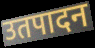
उतपादन